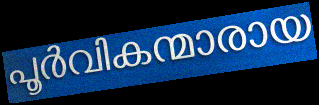
പൂർവികന്മാരായ